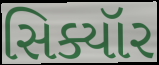
સિક્યૉર